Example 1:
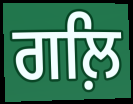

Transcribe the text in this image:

ਗਲ਼ਿ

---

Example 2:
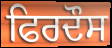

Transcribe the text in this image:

ਫਿਰਦੌਸ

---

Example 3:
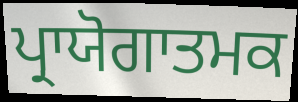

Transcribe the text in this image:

ਪ੍ਰਾਯੋਗਾਤਮਕ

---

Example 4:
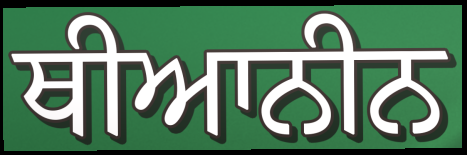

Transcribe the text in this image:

ਥੀਆਨੀਨ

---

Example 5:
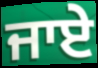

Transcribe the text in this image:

ਜਾਏੇ